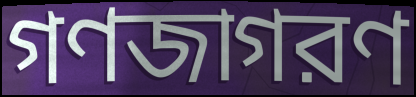
গণজাগরণ